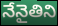
నేనైతిని